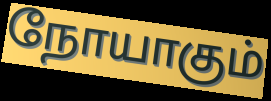
நோயாகும்